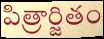
పిత్రార్జితం